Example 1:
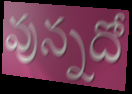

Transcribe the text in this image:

వున్నదో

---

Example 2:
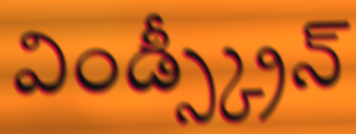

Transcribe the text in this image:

విండ్స్క్రీన్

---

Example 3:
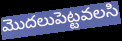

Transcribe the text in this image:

మొదలుపెట్టవలసి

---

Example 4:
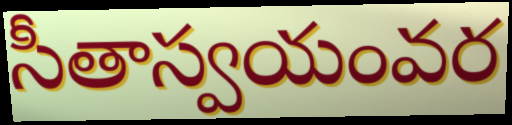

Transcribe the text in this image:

సీతాస్వయంవర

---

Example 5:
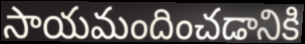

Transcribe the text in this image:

సాయమందించడానికి